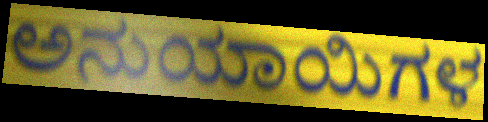
ಅನುಯಾಯಿಗಳ